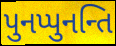
પુનપ્પુનન્તિ